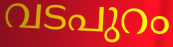
വടപുറം